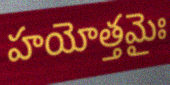
హయోత్తమైః